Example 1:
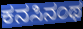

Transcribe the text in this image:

ಕನಸಿನಂಥ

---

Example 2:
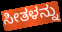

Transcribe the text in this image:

ಸೀತಳನ್ನು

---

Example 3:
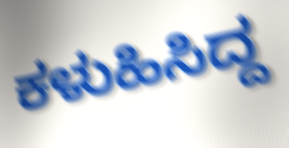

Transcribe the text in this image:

ಕಳುಹಿಸಿದ್ದ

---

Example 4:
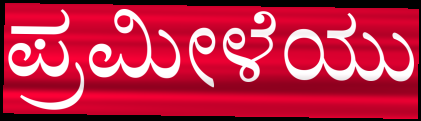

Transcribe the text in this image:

ಪ್ರಮೀಳೆಯು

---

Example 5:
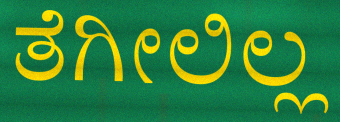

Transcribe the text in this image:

ತೆಗೀಲಿಲ್ಲ